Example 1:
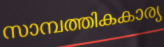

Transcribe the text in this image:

സാമ്പത്തികകാര്യ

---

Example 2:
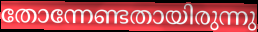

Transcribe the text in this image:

തോന്നേണ്ടതായിരുന്നു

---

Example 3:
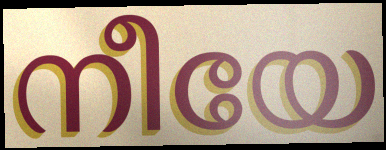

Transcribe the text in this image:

നീയേ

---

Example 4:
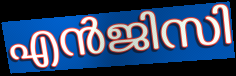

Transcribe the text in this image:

എൻജിസി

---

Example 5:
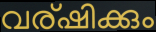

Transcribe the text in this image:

വര്ഷിക്കും